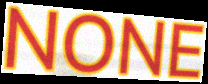
NONE